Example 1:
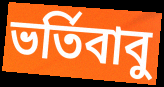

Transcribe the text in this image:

ভর্তিবাবু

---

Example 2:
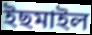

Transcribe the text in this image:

ইছমাইল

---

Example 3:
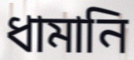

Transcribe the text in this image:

ধামানি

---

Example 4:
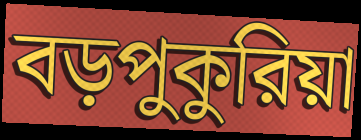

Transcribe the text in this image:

বড়পুকুরিয়া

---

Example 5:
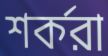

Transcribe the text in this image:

শর্করা